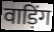
वाड़िंग